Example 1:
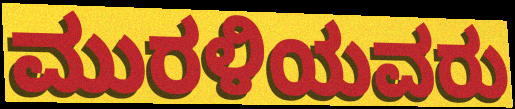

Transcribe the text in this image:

ಮುರಳಿಯವರು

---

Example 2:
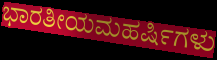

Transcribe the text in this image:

ಭಾರತೀಯಮಹರ್ಷಿಗಳು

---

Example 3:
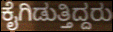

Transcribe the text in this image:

ಕೈಗಿಡುತ್ತಿದ್ದರು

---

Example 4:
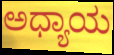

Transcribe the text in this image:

ಅಧ್ಯಾಯ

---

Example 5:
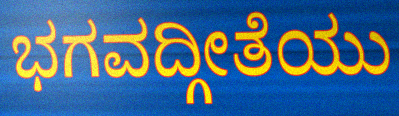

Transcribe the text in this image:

ಭಗವದ್ಗೀತೆಯು